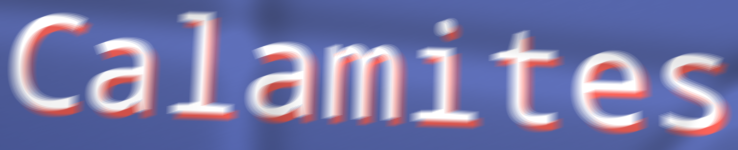
Calamites